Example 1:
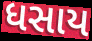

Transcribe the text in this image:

ધસાય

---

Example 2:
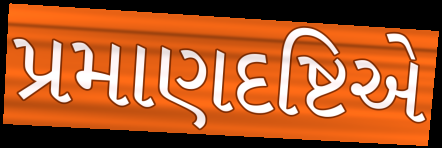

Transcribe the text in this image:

પ્રમાણદષ્ટિએ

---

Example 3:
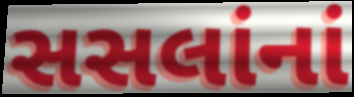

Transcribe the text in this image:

સસલાંનાં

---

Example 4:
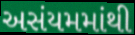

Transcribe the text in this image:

અસંયમમાંથી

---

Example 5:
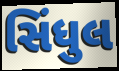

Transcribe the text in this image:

સિંધુલ